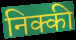
निक्‍की